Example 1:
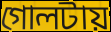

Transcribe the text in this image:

গোলটায়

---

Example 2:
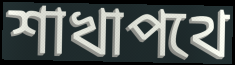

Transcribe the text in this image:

শাখাপথে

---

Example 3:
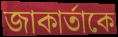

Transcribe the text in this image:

জাকার্তাকে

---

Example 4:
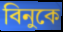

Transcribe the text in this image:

বিনুকে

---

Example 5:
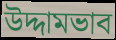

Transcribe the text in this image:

উদ্দামভাব